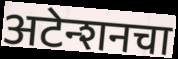
अटेन्शनचा